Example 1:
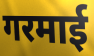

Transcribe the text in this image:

गरमाई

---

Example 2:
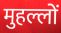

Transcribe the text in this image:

मुहल्लों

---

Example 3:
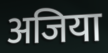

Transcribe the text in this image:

अजिया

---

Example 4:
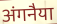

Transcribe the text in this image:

अंगनैया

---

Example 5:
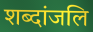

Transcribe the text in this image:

शब्दांजलि